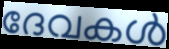
ദേവകൾ